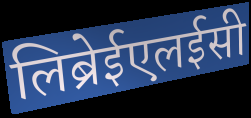
लिब्रेईएलईसी